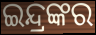
ଇନ୍ଦ୍ରଙ୍କର